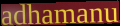
adhamanu